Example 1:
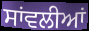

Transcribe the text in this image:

ਸਾਂਵਲੀਆਂ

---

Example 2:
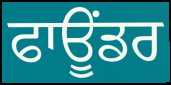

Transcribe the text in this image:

ਫਾਊਂਡਰ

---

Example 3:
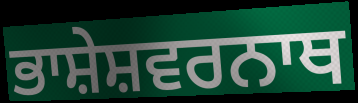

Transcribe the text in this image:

ਭਾਸ਼ੇਸ਼ਵਰਨਾਥ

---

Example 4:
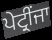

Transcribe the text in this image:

ਪੇਟ੍ਰੀਂਜਾ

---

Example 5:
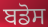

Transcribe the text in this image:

ਬਡੋਸ